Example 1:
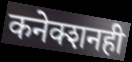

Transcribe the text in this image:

कनेक्शनही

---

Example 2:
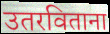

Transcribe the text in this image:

उतरविताना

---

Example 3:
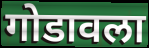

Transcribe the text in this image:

गोडावला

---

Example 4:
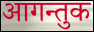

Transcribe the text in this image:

आगन्तुक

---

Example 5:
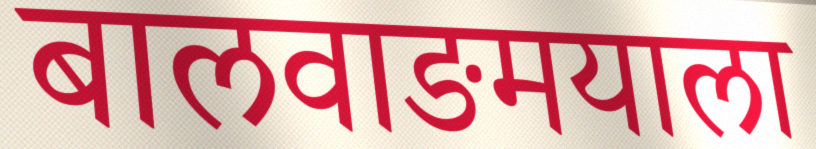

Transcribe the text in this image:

बालवाङमयाला